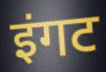
इंगट